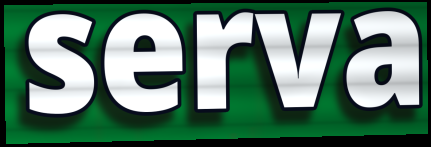
serva